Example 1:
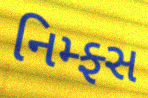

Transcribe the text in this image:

નિમ્ફ્સ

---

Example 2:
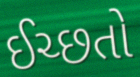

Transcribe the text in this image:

ઈચ્છતો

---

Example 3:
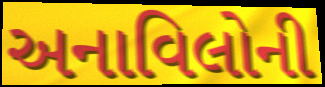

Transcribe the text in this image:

અનાવિલોની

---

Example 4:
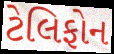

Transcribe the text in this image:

ટેલિફોન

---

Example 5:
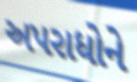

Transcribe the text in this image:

અપરાધોને